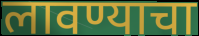
लावण्याचा